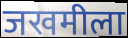
जखमीला